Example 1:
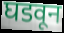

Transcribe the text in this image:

घडवून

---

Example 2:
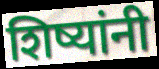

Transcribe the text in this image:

शिष्यांनी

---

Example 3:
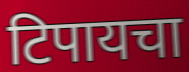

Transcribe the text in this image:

टिपायचा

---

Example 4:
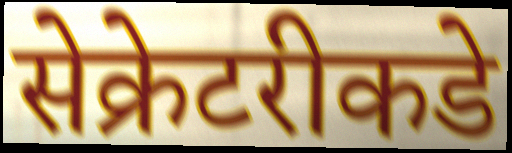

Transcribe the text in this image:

सेक्रेटरीकडे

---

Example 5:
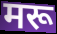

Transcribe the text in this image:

मरू